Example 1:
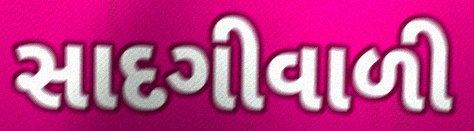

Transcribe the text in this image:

સાદગીવાળી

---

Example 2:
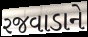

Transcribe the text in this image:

રજવાડાને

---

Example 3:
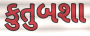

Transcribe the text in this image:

કુતુબશા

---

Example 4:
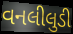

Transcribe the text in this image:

વનલીલુડી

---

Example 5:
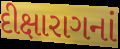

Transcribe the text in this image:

દીક્ષારાગનાં